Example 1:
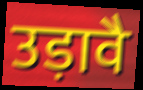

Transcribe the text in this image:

उड़ावै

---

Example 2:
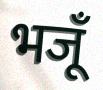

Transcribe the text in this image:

भजूँ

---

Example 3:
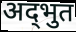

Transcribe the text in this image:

अद्‌भुत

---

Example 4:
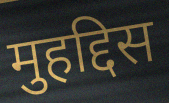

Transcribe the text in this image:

मुहद्दिस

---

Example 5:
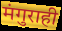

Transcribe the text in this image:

मंगुराही